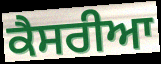
ਕੈਸਰੀਆ